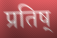
प्रतिष्